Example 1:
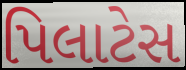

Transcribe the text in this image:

પિલાટેસ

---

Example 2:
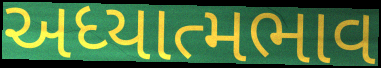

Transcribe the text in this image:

અધ્યાત્મભાવ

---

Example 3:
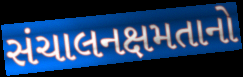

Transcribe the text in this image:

સંચાલનક્ષમતાનો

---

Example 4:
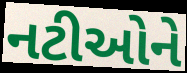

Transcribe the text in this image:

નટીઓને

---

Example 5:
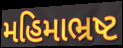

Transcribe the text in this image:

મહિમાભ્રષ્ટ